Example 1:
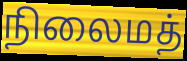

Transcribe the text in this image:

நிலைமத்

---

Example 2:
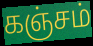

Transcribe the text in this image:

கஞ்சம்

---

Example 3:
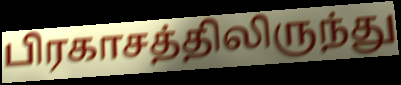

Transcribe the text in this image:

பிரகாசத்திலிருந்து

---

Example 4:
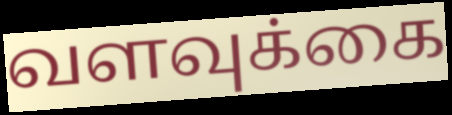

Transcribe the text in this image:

வளவுக்கை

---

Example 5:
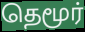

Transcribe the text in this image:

தெமூர்